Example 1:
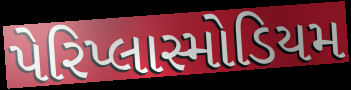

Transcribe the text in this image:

પેરિપ્લાસ્મોડિયમ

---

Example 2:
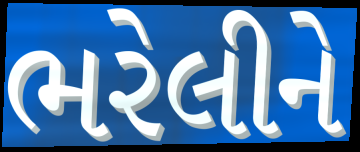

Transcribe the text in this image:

ભરેલીને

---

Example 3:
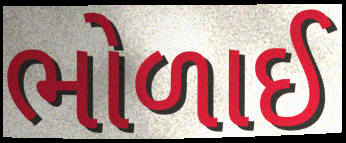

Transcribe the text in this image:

ભોળાઈ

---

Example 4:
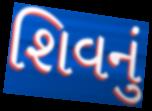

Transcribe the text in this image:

શિવનું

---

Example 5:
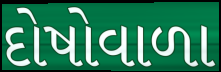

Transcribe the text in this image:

દોષોવાળા